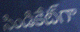
సిండికేట్‌గా